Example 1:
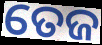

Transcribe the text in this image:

ତେଜ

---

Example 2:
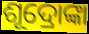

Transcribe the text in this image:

ଶୂଦ୍ରୋଙ୍କା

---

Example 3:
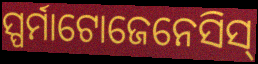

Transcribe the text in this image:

ସ୍ପର୍ମାଟୋଜେନେସିସ୍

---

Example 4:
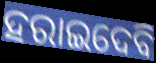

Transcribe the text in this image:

ହରାଇଦେବି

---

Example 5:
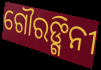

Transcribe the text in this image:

ଗୌରଙ୍ଗିନୀ